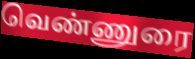
வெண்ணுரை